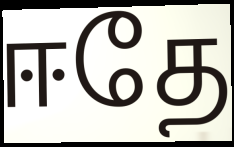
ஈதே